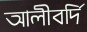
আলীবর্দি